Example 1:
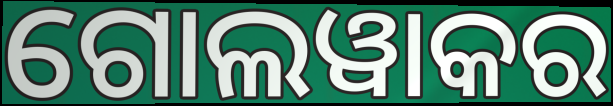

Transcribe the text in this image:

ଗୋଲୱାକର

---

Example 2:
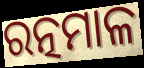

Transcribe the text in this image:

ରତ୍ନମାଳ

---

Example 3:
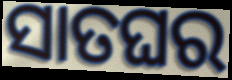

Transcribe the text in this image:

ସାତଘର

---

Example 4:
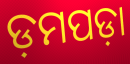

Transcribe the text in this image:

ଡ଼ମପଡ଼ା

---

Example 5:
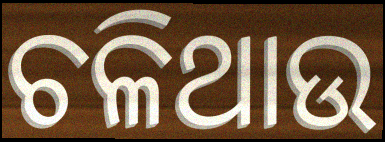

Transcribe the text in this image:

ଚଳିଥାଉ